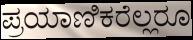
ಪ್ರಯಾಣಿಕರೆಲ್ಲರೂ